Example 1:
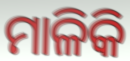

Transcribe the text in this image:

ମାଳିକି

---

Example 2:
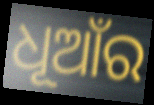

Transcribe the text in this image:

ଧୂଆଁର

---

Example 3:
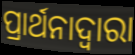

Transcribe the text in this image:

ପ୍ରାର୍ଥନାଦ୍ଵାରା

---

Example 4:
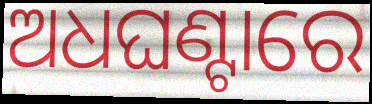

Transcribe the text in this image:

ଅଧଘଣ୍ଟାରେ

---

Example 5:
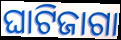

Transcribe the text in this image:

ଘାଟିଜାଗା